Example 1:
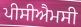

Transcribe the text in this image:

ਪੀਸੀਐਮਸੀ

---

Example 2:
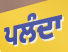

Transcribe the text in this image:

ਪਲੰਦਾ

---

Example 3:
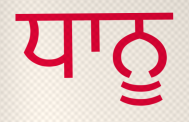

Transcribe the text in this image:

ਧਾਨੂ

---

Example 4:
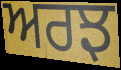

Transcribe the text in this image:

ਅਰਝ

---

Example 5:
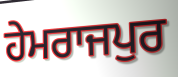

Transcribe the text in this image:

ਹੇਮਰਾਜਪੁਰ